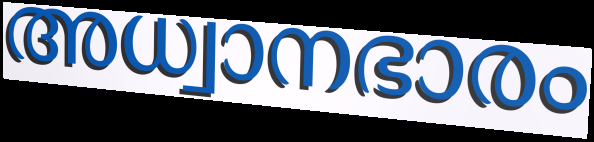
അധ്വാനഭാരം